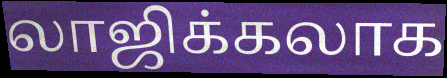
லாஜிக்கலாக